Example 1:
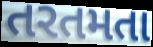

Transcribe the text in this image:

તરતમતા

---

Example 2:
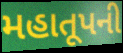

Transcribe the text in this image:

મહાતૂપની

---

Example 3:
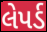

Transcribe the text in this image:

લેપર્ડ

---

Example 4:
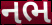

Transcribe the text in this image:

નભ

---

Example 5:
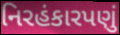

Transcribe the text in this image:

નિરહંકારપણું